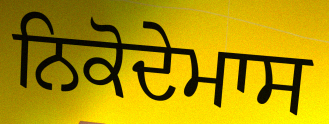
ਨਿਕੋਦੇਮਾਸ